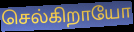
செல்கிறாயோ